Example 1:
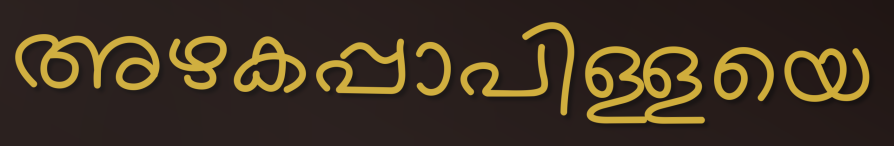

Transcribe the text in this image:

അഴകപ്പാപിള്ളയെ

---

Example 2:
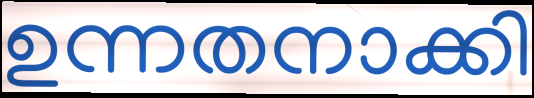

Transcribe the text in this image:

ഉന്നതനാക്കി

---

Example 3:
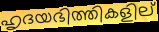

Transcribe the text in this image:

ഹൃദയഭിത്തികളില്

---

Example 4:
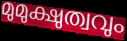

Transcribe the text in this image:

മുമുക്ഷുത്വവും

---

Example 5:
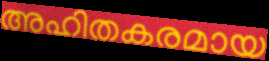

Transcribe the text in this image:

അഹിതകരമായ